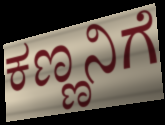
ಕಣ್ಣನಿಗೆ